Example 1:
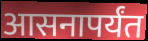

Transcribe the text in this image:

आसनापर्यंत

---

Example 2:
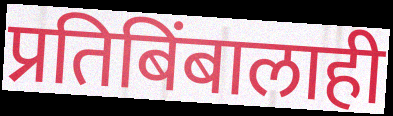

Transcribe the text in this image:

प्रतिबिंबालाही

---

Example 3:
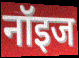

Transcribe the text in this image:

नॉइज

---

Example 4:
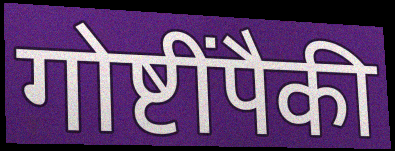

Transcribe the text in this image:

गोष्टींपैकी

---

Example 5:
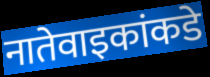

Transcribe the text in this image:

नातेवाइकांकडे